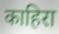
काहिरा